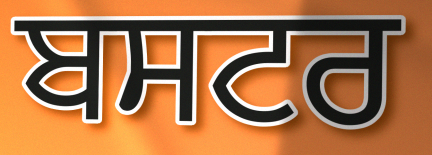
ਬਸਟਰ